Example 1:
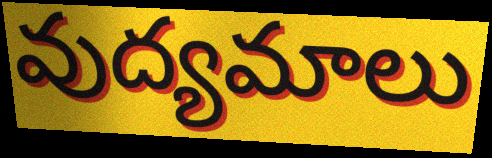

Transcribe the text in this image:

వుద్యమాలు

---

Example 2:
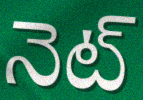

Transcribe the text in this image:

నెట్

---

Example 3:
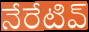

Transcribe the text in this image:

నేరేటివ్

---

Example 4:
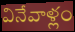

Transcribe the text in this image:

వినేవాళ్లం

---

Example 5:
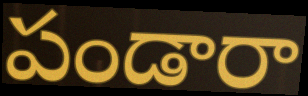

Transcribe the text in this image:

పండారా